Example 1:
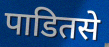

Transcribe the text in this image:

पाडितसे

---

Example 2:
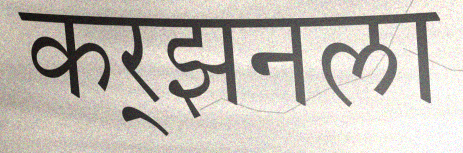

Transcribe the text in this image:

कर्झनला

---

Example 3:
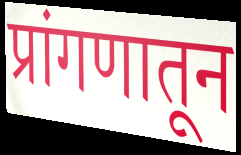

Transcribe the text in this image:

प्रांगणातून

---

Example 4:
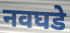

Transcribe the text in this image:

नवघडे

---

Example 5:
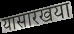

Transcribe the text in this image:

यासारखया